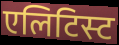
एलिटिस्ट